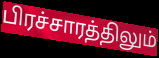
பிரச்சாரத்திலும்